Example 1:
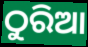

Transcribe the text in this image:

ଠୁରିଆ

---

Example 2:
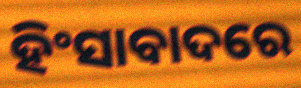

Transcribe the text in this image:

ହିଂସାବାଦରେ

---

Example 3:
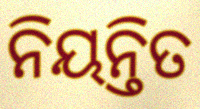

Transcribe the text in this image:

ନିୟନ୍ତିତ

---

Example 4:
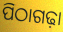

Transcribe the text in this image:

ପିଠାଗଢ଼ା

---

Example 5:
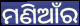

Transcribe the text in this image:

ମଣିଆଁର